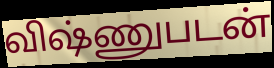
விஷ்ணுபடன்